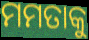
ମମତାକୁ